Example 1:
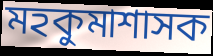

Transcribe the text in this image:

মহকুমাশাসক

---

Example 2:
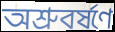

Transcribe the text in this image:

অশ্রুবর্ষণে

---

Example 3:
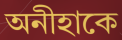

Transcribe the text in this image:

অনীহাকে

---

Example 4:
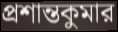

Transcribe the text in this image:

প্রশান্তকুমার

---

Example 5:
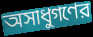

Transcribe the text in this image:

অসাধুগণের